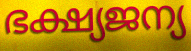
ഭക്ഷ്യജന്യ